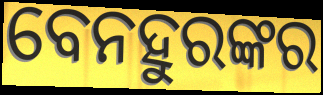
ବେନହୁରଙ୍କର